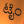
ಟೈಂ